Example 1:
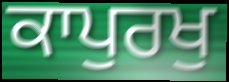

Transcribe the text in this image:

ਕਾਪੁਰਖੁ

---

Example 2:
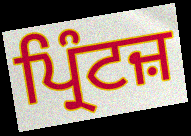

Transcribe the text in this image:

ਪ੍ਰਿੰਟਜ਼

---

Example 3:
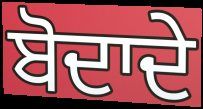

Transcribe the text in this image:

ਬੋਦਾਦੇ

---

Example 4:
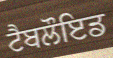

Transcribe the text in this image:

ਟੈਬਲੌਇਡ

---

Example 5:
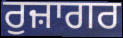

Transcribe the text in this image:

ਰੁਜ਼ਾਗਰ